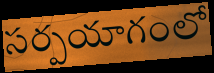
సర్పయాగంలో